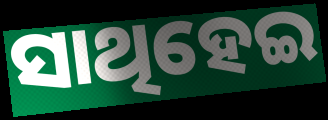
ସାଥିହେଇ